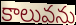
కాలువను